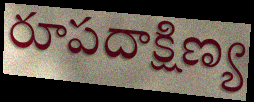
రూపదాక్షిణ్య